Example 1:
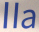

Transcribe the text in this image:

IIa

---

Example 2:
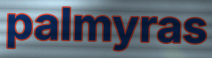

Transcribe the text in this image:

palmyras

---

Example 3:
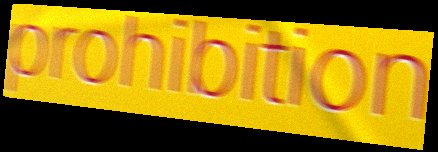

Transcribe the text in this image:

prohibition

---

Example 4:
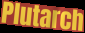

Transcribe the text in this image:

Plutarch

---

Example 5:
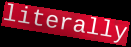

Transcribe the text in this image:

literally